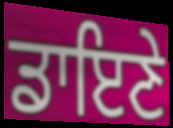
ਡਾਇਣੇ